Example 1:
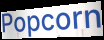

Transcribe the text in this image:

Popcorn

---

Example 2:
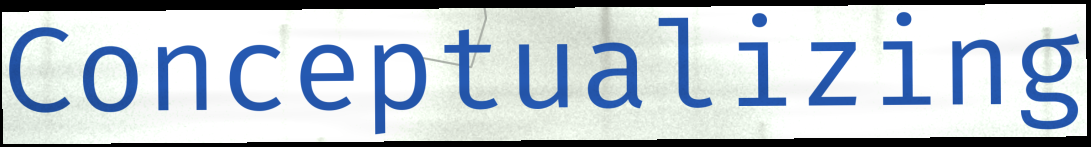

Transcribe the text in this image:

Conceptualizing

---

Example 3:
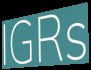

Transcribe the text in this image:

IGRs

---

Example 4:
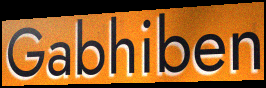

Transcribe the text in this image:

Gabhiben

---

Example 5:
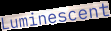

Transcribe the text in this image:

Luminescent